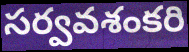
సర్వవశంకరి